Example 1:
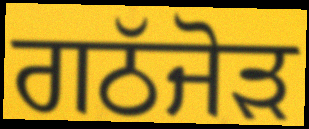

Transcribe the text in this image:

ਗਠੱਜੋੜ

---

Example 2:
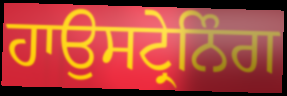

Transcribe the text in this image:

ਹਾਉਸਟ੍ਰੇਨਿੰਗ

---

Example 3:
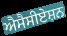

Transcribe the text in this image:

ਐਸੈਸੀਏਸ਼ਨ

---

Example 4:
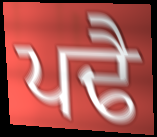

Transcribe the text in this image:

ਪਢੈ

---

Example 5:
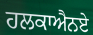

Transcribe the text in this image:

ਹਲਕਾਐਨਏ